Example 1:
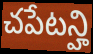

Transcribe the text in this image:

చపేటన్హి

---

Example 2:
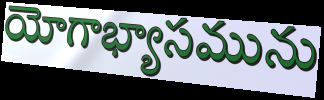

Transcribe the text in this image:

యోగాభ్యాసమును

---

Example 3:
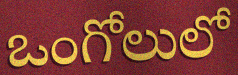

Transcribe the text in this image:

ఒంగోలులో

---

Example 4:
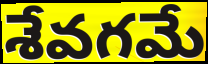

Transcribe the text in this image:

శేవగమే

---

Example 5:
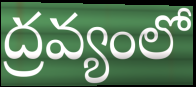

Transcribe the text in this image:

ద్రవ్యంలో